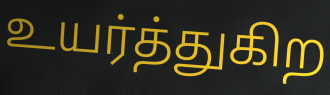
உயர்த்துகிற